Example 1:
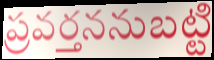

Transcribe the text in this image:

ప్రవర్తననుబట్టి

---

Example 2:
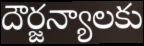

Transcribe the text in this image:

దౌర్జన్యాలకు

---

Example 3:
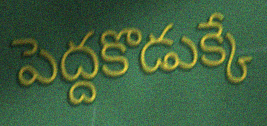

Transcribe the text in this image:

పెద్దకొడుక్కే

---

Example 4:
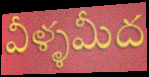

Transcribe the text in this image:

వీళ్ళమీద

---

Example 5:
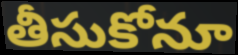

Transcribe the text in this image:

తీసుకోనూ